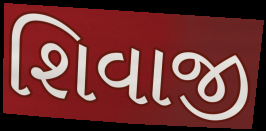
શિવાજી